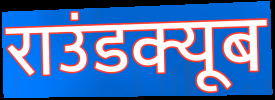
राउंडक्यूब